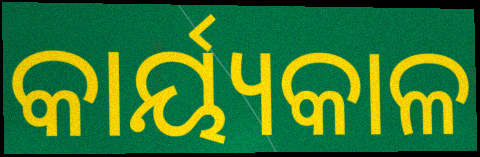
କାର୍ୟ୍ୟକାଳ